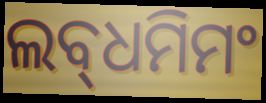
ଲବ୍‌ଧମିମଂ